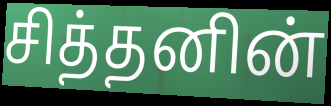
சித்தனின்